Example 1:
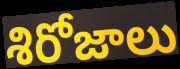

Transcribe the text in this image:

శిరోజాలు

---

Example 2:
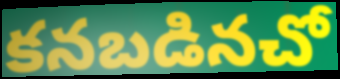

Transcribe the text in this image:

కనబడినచో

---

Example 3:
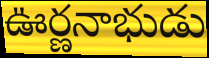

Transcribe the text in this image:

ఊర్ణనాభుడు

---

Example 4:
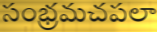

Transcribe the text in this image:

సంభ్రమచపలా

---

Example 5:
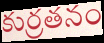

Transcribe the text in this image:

కుర్రతనం